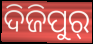
ଦିଜିପୁର୍